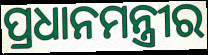
ପ୍ରଧାନମନ୍ତ୍ରୀର